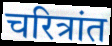
चरित्रांत